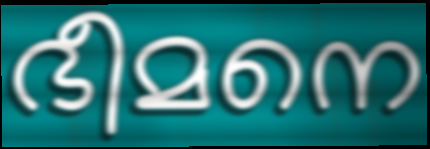
ഭീമനെ